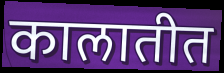
कालातीत